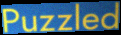
Puzzled